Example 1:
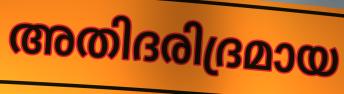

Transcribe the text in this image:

അതിദരിദ്രമായ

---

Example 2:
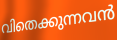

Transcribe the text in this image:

വിതെക്കുന്നവൻ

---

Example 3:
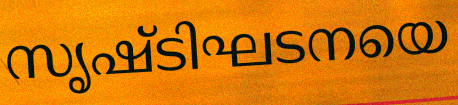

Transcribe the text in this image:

സൃഷ്ടിഘടനയെ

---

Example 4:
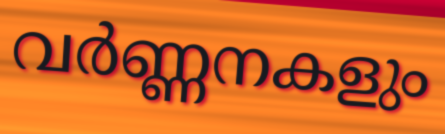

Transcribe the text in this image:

വർണ്ണനകളും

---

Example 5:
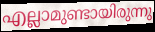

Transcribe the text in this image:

എല്ലാമുണ്ടായിരുന്നു